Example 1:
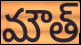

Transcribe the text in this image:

మౌత్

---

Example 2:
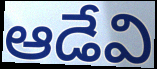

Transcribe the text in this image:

ఆడేవి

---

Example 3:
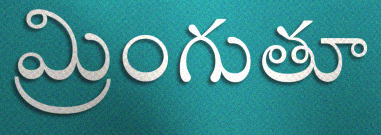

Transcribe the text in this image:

మ్రింగుతూ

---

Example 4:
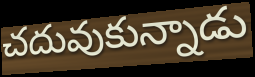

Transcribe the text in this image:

చదువుకున్నాడు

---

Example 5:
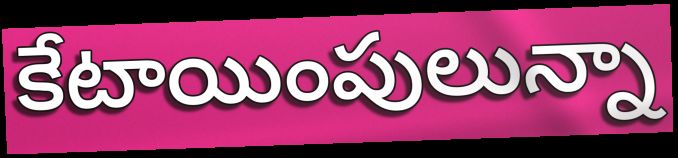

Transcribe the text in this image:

కేటాయింపులున్నా